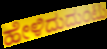
ಹೇಳಿದುದುಂಟು